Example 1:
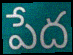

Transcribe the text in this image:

పేద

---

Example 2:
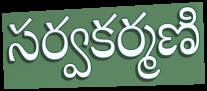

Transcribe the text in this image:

సర్వకర్మణి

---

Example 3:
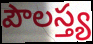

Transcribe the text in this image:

పౌలస్త్య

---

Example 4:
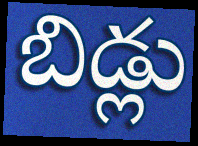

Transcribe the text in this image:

బిడ్లు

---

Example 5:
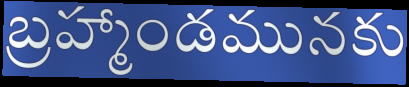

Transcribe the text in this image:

బ్రహ్మాండమునకు